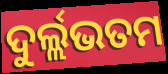
ଦୁର୍ଲ୍ଲଭତମ